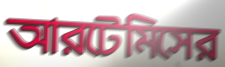
আরটেমিসের